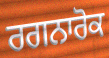
ਰਗਨਾਰੋਕ